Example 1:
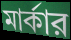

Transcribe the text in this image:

মার্কার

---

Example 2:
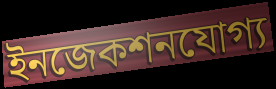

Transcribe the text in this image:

ইনজেকশনযোগ্য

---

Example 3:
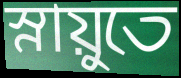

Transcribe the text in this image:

স্নায়ুতে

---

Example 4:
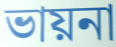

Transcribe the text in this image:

ভায়না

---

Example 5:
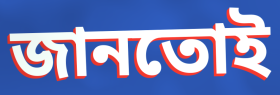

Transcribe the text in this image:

জানতোই